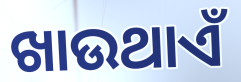
ଖାଉଥାଏଁ